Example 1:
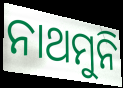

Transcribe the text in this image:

ନାଥମୁନି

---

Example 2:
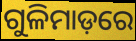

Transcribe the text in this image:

ଗୁଳିମାଡ଼ରେ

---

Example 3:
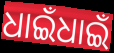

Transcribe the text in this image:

ଧାଇଁଧାଇଁ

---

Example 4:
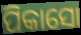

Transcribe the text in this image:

ପିକାସୋ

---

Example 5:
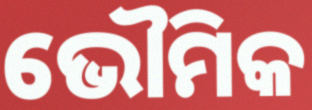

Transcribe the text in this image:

ଭୌମିକ